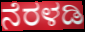
ನೆರಳಡಿ